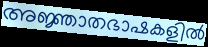
അജ്ഞാതഭാഷകളിൽ